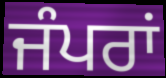
ਜੰਪਰਾਂ